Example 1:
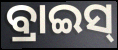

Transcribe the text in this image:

ବ୍ରାଇସ୍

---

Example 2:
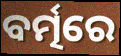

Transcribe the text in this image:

ବର୍ତ୍ମରେ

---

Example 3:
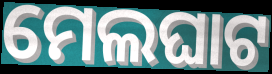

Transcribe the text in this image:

ମେଲଘାଟ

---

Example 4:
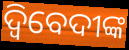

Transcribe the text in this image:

ଦ୍ବିବେଦୀଙ୍କ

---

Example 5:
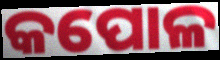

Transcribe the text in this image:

କପୋଳ